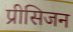
प्रीसिजन